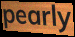
pearly